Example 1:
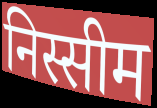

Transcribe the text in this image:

निस्सीम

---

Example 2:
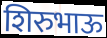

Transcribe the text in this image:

शिरुभाऊ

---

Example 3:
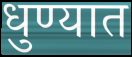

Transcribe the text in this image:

धुण्यात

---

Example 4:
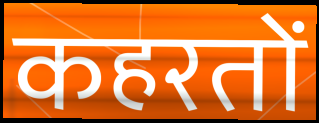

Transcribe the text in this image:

कहरतों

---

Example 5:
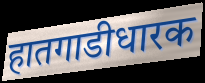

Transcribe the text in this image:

हातगाडीधारक